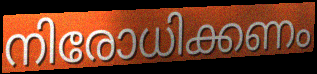
നിരോധിക്കണം